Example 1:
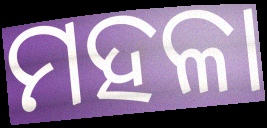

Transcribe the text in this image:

ମହଳା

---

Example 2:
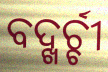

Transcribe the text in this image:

ବଦ୍ଖର୍ଚ୍ଚୀ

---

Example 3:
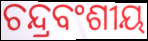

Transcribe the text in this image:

ଚନ୍ଦ୍ରବଂଶୀୟ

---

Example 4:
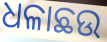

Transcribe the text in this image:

ଧଳାଛଉ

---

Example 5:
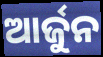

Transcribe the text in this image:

ଆର୍ଜୁନ